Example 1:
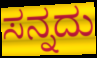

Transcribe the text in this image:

ಸನ್ನದು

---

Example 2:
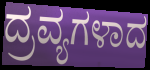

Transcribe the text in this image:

ದ್ರವ್ಯಗಳಾದ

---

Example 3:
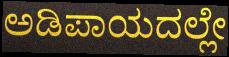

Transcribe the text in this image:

ಅಡಿಪಾಯದಲ್ಲೇ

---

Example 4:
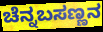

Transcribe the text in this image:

ಚೆನ್ನಬಸಣ್ಣನ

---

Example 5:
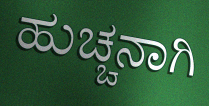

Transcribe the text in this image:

ಹುಚ್ಚನಾಗಿ